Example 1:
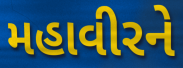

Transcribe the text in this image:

મહાવીરને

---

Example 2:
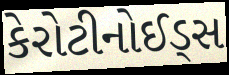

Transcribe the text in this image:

કેરોટીનોઈડ્સ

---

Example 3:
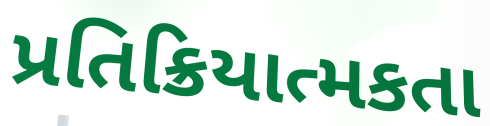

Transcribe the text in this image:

પ્રતિક્રિયાત્મકતા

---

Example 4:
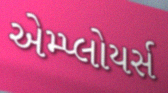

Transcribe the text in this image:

એમ્પ્લોયર્સ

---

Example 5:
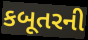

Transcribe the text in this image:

કબૂતરની